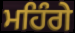
ਮਹਿੰਗੇ